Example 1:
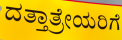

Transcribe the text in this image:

ದತ್ತಾತ್ರೇಯರಿಗೆ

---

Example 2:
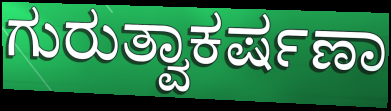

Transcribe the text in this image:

ಗುರುತ್ವಾಕರ್ಷಣಾ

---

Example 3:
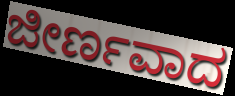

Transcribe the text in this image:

ಜೀರ್ಣವಾದ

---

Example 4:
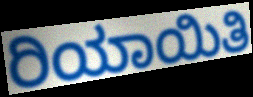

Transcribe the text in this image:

ರಿಯಾಯಿತಿ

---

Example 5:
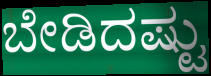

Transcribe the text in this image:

ಬೇಡಿದಷ್ಟು